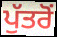
ਪੁੱਤਰੋਂ